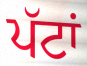
ਪੱਟਾਂ